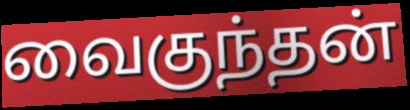
வைகுந்தன்